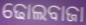
ଢୋଲବାଜା